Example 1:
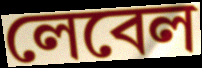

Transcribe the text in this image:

লেবেল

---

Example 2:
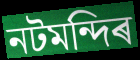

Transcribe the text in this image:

নটমন্দিৰ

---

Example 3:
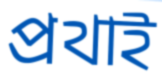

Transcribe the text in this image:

প্ৰথাই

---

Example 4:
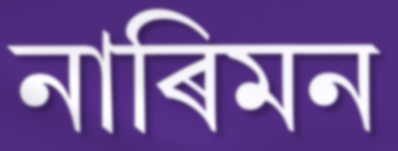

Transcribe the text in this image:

নাৰিমন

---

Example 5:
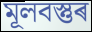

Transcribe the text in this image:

মূলবস্তুৰ